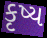
કૃષ્ય